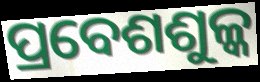
ପ୍ରବେଶଶୁଳ୍କ